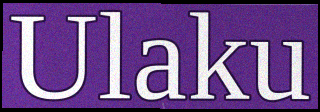
Ulaku